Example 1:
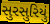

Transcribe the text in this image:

સુરસુરિયું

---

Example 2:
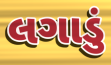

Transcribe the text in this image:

લગાડું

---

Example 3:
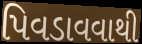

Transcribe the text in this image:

પિવડાવવાથી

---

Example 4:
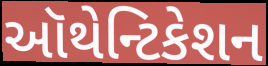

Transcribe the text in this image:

ઑથેન્ટિકેશન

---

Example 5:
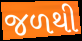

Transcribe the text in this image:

જળથી